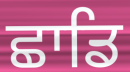
ਛਾਡਿ